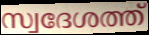
സ്വദേശത്ത്